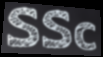
SSc